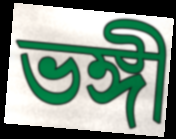
ভঙ্গী